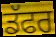
ਡੱਫਰ